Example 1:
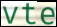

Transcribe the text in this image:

vte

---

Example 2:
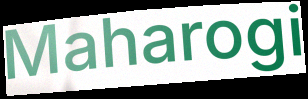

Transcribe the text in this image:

Maharogi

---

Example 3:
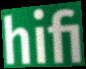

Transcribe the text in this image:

hifi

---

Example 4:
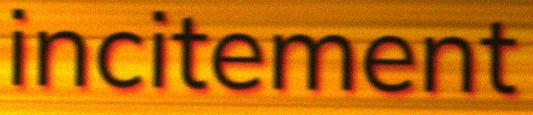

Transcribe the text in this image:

incitement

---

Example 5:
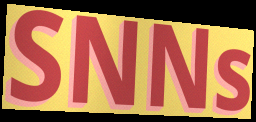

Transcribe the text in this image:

SNNs